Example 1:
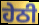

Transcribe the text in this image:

ਹੇਠੀ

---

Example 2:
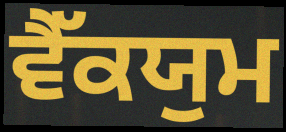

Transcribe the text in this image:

ਵੈੱਕਯੁਮ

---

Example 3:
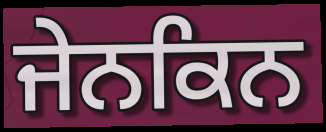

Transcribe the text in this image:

ਜੇਨਕਿਨ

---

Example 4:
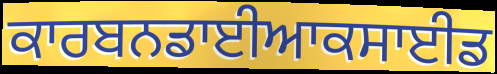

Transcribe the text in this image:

ਕਾਰਬਨਡਾਈਆਕਸਾਈਡ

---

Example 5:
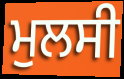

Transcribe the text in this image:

ਮੁਲਸੀ